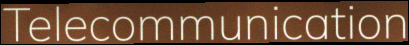
Telecommunication